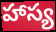
హాస్య